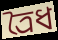
ত্রৈধ